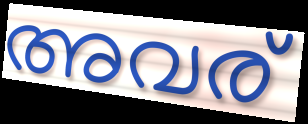
അവര്